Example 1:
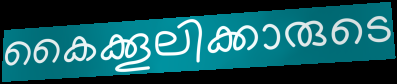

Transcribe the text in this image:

കൈക്കൂലിക്കാരുടെ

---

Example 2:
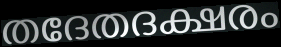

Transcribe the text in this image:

തദേതദക്ഷരം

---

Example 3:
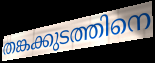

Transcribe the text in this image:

തങ്കക്കുടത്തിനെ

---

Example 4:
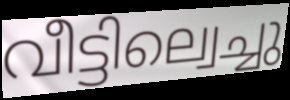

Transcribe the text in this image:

വീട്ടില്വെച്ചു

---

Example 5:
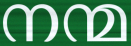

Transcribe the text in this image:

നന്മ